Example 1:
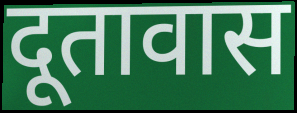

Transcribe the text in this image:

दूतावास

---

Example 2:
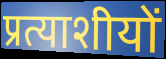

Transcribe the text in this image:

प्रत्याशीयों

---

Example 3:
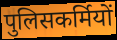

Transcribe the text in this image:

पुलिसकर्मियों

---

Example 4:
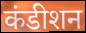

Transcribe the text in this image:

कंडीशन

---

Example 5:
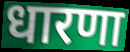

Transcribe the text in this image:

धारणा